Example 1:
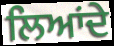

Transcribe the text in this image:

ਲਿਆਂਦੇ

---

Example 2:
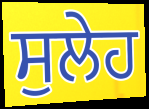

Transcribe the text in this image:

ਸੁਲੇਹ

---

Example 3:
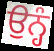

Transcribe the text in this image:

ਉਨ੍ਹੰ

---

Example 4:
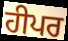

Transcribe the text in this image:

ਹੀਪਰ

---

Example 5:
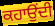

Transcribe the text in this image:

ਕਹਾਉਂਦੀ